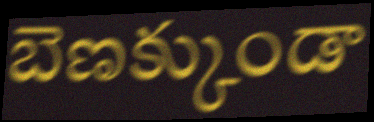
బెణక్కుండా